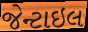
જેન્ટાઇલ